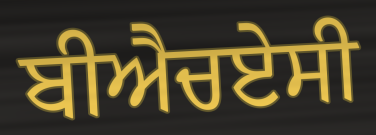
ਬੀਐਚਏਸੀ